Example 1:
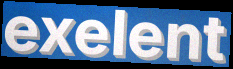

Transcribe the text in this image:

exelent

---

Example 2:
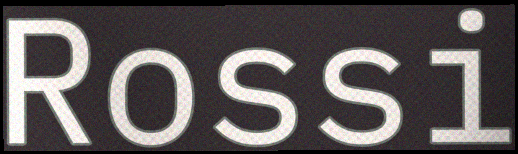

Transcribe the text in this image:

Rossi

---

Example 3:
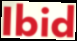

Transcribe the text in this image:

Ibid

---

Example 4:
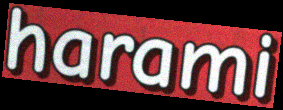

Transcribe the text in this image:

harami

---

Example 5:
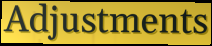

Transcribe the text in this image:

Adjustments